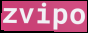
zvipo